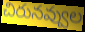
చిరునవ్వుల